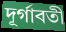
দূর্গাবতী